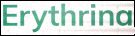
Erythrina